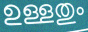
ഉള്ളതും